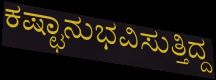
ಕಷ್ಟಾನುಭವಿಸುತ್ತಿದ್ದ